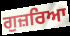
ਗੁਜ਼ਰਿਆ